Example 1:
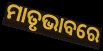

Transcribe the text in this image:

ମାତୃଭାବରେ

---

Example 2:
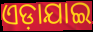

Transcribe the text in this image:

ଏଡ଼ାଯାଇ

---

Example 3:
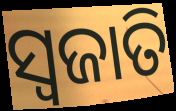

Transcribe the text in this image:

ସ୍ୱଜାତି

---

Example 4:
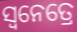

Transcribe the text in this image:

ସ୍ୱନେତ୍ରେ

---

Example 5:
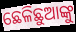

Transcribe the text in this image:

ଛେଳିଛୁଆଙ୍କୁ